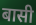
बासी